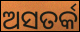
ଅସତର୍କ